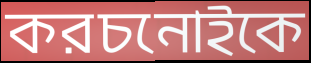
করচনোইকে